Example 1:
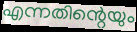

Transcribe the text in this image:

എന്നതിന്റെയും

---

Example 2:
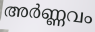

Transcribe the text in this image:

അർണ്ണവം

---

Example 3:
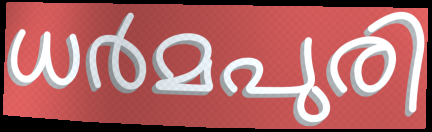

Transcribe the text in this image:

ധർമപുരി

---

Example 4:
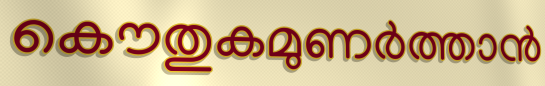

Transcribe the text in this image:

കൌതുകമുണർത്താൻ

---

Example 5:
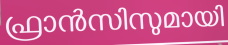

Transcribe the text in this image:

ഫ്രാൻസിസുമായി